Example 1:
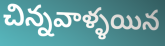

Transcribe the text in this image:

చిన్నవాళ్ళయిన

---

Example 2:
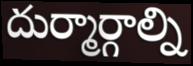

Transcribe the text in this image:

దుర్మార్గాల్ని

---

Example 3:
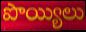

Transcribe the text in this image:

పొయ్యిలు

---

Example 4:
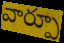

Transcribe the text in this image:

వార్పూ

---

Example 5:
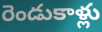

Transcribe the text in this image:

రెండుకాళ్లు